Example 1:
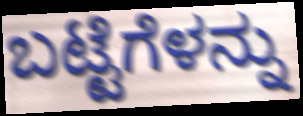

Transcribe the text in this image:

ಬಟ್ಟೆಗೆಳನ್ನು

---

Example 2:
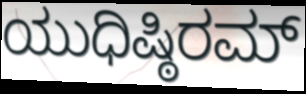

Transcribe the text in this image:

ಯುಧಿಷ್ಠಿರಮ್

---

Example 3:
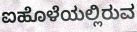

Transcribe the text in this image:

ಐಹೊಳೆಯಲ್ಲಿರುವ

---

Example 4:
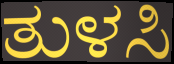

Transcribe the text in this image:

ತುಳಸಿ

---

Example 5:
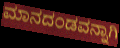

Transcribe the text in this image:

ಮಾನದಂಡವನ್ನಾಗಿ